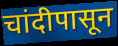
चांदीपासून